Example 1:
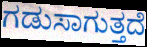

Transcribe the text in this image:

ಗಡುಸಾಗುತ್ತದೆ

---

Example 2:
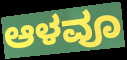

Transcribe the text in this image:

ಆಳವೂ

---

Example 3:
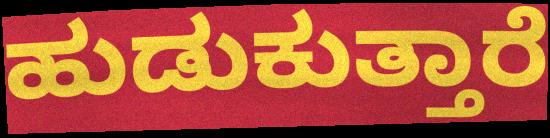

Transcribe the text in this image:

ಹುಡುಕುತ್ತಾರೆ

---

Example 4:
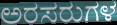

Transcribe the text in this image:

ಅರಸರುಗಳ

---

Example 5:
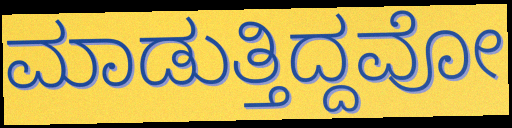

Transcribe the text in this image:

ಮಾಡುತ್ತಿದ್ದವೋ